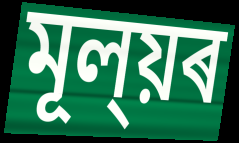
মূল্য়ৰ